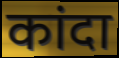
कांदा